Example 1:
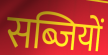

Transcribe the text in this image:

सब्जियों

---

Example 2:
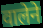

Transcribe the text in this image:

वालेने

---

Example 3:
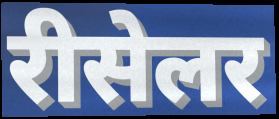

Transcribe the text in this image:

रीसेलर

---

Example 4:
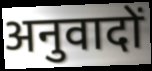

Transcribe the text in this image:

अनुवादों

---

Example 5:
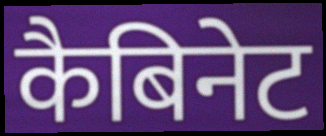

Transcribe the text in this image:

कैबिनेट